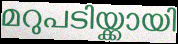
മറുപടിയ്ക്കായി